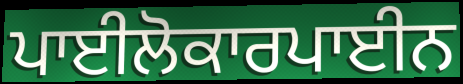
ਪਾਈਲੋਕਾਰਪਾਈਨ